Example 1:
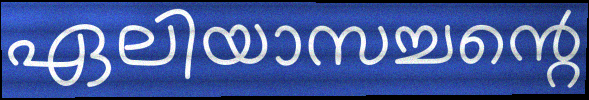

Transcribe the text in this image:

ഏലിയാസച്ചന്റെ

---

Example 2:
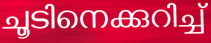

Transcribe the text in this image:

ചൂടിനെക്കുറിച്ച്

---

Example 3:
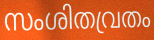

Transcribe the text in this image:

സംശിതവ്രതം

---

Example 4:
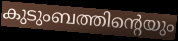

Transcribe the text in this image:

കുടുംബത്തിന്റെയും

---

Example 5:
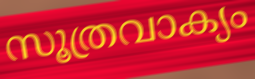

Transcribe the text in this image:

സൂത്രവാക്യം